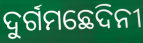
ଦୁର୍ଗମଛେଦିନୀ